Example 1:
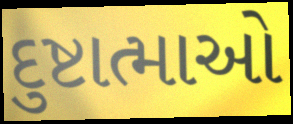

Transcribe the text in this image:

દુષ્ટાત્માઓ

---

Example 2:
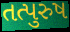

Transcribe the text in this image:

તત્પુરુષ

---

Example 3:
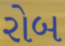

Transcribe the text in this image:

રોબ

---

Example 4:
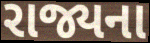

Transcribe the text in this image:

રાજ્યના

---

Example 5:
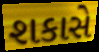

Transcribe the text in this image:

શકાસે